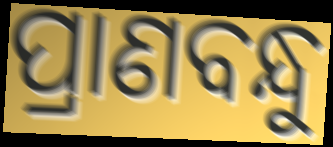
ପ୍ରାଣବନ୍ଧୁ